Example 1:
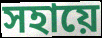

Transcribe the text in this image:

সহায়ে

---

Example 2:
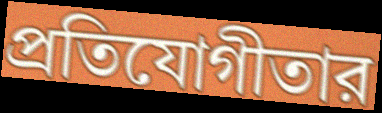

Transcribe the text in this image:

প্রতিযোগীতার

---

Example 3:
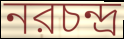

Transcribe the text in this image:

নরচন্দ্র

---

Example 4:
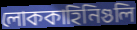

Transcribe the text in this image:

লোককাহিনিগুলি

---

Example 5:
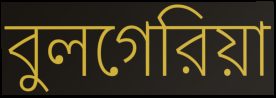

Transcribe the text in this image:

বুলগেরিয়া